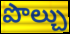
పొల్చు